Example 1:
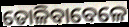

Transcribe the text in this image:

ତୋଳିବାବେଳେ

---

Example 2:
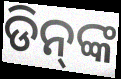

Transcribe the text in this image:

ଡିନ୍‍ଙ୍କ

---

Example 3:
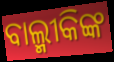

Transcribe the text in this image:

ବାଲ୍ମୀକିଙ୍କ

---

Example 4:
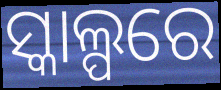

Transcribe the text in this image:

ସ୍କାଲ୍ପରେ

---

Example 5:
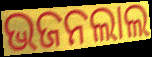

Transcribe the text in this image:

ଭଜନଲାଲ